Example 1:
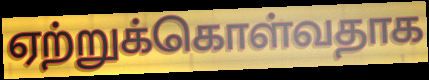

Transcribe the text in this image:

ஏற்றுக்கொள்வதாக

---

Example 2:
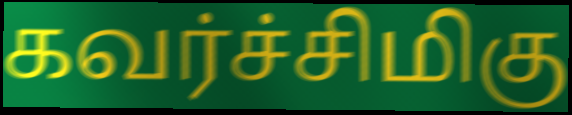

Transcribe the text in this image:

கவர்ச்சிமிகு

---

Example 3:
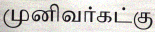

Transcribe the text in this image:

முனிவர்கட்கு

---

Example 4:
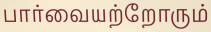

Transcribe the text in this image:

பார்வையற்றோரும்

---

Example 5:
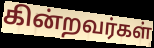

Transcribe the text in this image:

கின்றவர்கள்